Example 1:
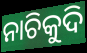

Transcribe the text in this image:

ନାଚିକୁଦି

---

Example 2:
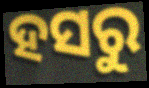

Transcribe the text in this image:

ହସରୁ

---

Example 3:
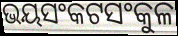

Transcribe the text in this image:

ଭୟସଂକଟସଂକୁଳ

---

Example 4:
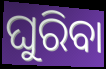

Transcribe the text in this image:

ଘୁରିବା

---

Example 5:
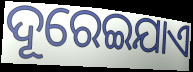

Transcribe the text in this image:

ଦୂରେଇଯାଏ